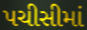
પચીસીમાં